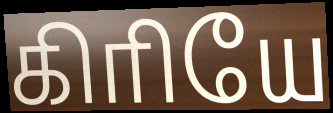
கிரியே